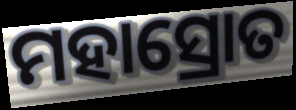
ମହାସ୍ରୋତ